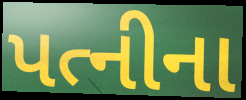
પત્નીના